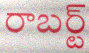
రాబర్ట్